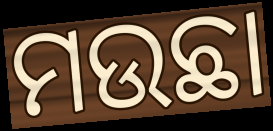
ମଉଛା